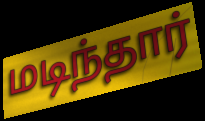
மடிந்தார்